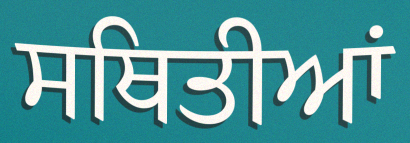
ਸਥਿਤੀਆਂ